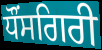
ਧੌਂਸਗਿਰੀ